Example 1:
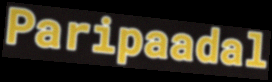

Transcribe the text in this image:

Paripaadal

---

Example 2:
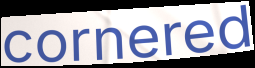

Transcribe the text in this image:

cornered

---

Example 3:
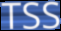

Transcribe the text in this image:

TSS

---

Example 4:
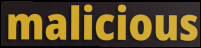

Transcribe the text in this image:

malicious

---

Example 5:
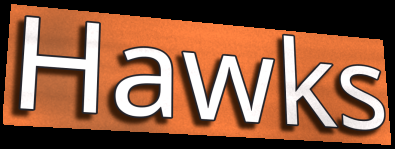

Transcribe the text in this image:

Hawks